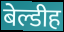
बेल्डीह